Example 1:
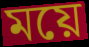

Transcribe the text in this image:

ময়ে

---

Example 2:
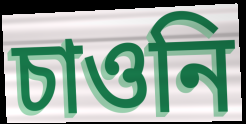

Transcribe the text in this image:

চাওনি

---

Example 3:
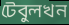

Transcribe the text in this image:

টেবুলখন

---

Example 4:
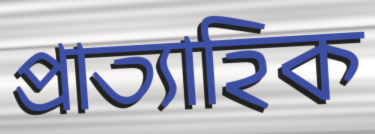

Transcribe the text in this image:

প্ৰাত্যাহিক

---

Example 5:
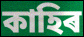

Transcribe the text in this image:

কাহিৰ